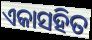
ଏକାସହିତ